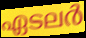
ഏടലർ